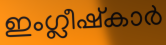
ഇംഗ്ലീഷ്കാർ